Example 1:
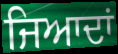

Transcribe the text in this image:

ਜਿਆਦਾਂ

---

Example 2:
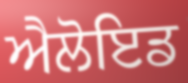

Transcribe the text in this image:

ਐਲੋਇਡ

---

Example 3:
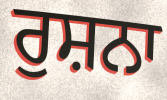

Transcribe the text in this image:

ਰੁਸ਼ਨਾ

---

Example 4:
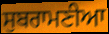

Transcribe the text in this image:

ਸੁਬਰਾਮਣੀਆ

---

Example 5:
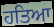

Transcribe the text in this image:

ਹਤਿਆ